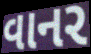
વાનર